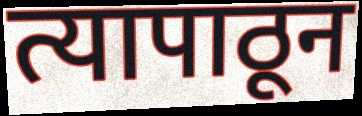
त्यापाठून